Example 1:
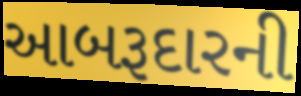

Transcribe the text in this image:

આબરૂદારની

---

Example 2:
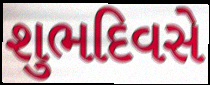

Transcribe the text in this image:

શુભદિવસે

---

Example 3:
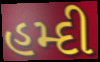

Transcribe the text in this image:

હમ્દી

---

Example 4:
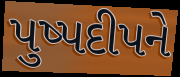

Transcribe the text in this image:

પુષ્પદીપને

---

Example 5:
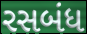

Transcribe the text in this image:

રસબંધ